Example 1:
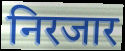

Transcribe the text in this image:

निरजार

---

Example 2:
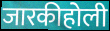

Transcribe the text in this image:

जारकीहोली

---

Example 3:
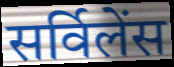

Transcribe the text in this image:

सर्विलेंस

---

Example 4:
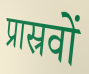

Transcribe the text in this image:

प्रास्रवों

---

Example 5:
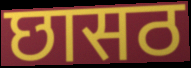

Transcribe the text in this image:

छासठ